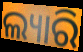
ଲ୍ୟାରି